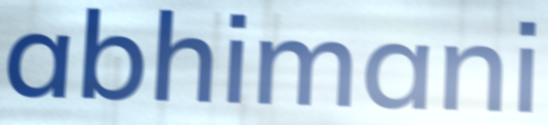
abhimani